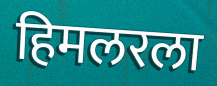
हिमलरला